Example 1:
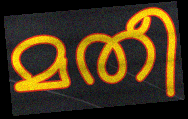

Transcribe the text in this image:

മതീ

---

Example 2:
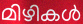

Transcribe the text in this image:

മിഴികൾ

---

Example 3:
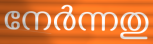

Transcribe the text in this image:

നേർന്നതു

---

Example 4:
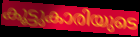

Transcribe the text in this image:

കൂട്ടുകാരിയുടെ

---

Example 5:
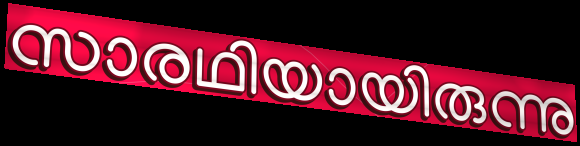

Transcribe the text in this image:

സാരഥിയായിരുന്നു